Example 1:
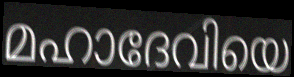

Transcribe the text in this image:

മഹാദേവിയെ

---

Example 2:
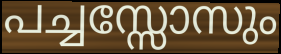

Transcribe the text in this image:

പച്ചസ്സോസും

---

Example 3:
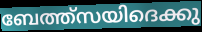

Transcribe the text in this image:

ബേത്ത്സയിദെക്കു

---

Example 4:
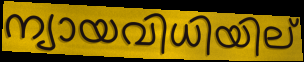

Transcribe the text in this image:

ന്യായവിധിയില്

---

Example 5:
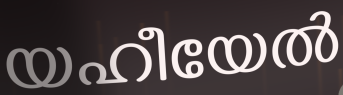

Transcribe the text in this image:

യഹീയേൽ